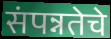
संपन्नतेचे